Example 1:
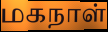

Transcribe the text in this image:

மகநாள்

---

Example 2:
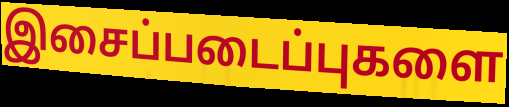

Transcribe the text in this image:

இசைப்படைப்புகளை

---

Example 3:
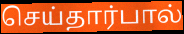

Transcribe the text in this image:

செய்தார்பால்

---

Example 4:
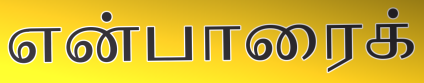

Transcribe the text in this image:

என்பாரைக்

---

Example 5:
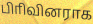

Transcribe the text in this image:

பிரிவினராக